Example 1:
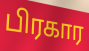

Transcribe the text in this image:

பிரகார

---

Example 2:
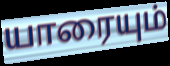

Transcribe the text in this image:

யாரையும்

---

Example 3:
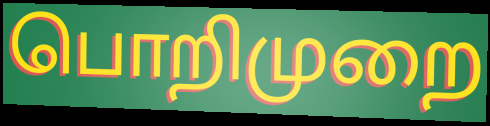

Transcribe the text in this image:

பொறிமுறை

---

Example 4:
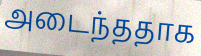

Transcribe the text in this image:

அடைந்ததாக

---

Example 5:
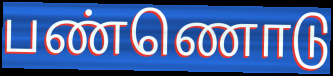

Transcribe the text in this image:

பண்ணொடு